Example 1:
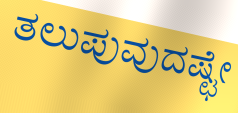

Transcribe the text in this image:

ತಲುಪುವುದಷ್ಟೇ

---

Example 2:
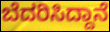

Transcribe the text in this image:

ಬೆದರಿಸಿದ್ದಾನೆ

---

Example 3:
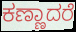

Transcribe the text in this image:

ಕಣ್ಣಾದರೆ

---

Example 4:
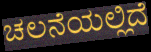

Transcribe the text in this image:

ಚಲನೆಯಲ್ಲಿದೆ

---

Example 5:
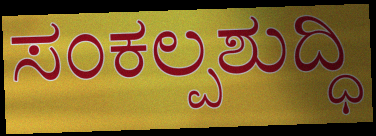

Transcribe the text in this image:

ಸಂಕಲ್ಪಶುದ್ಧಿ